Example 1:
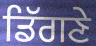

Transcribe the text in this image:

ਡਿੱਗਣੇ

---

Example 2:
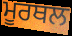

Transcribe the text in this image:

ਮੂਰਥਲ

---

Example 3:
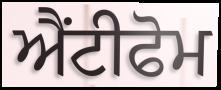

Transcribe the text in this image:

ਐਂਟੀਫੋਮ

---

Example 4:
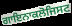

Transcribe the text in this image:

ਗਾਇਨਾਕਲੋਜਿਸਟ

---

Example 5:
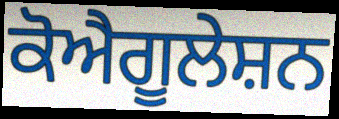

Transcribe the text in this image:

ਕੋਐਗੂਲੇਸ਼ਨ